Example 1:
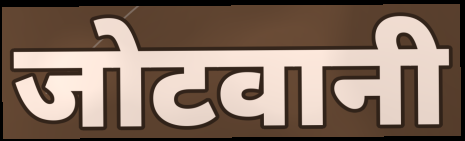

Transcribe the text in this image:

जोटवानी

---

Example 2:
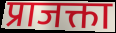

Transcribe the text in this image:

प्राजक्ता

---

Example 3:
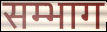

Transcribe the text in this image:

सम्भाग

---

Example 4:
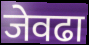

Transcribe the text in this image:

जेवढा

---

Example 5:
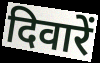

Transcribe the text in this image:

दिवारें